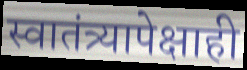
स्वातंत्र्यापेक्षाही